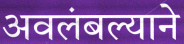
अवलंबल्याने